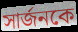
সার্জনকে